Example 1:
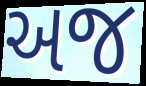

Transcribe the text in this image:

અજ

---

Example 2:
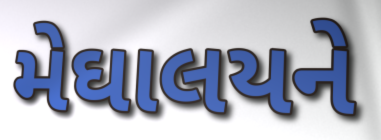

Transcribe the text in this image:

મેઘાલયને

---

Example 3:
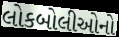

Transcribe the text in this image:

લોકબોલીઓનો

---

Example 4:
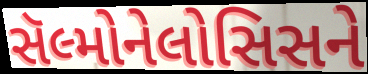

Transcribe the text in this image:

સૅલ્મોનેલોસિસને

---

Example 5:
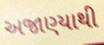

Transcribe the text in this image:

અજાણ્યાથી